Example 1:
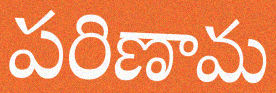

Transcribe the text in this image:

పరిణామ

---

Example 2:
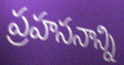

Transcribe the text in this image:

ప్రహసనాన్ని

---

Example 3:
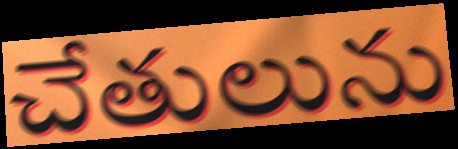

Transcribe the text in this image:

చేతులును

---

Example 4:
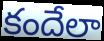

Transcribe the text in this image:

కందేలా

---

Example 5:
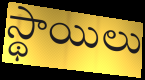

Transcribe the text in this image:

స్థాయిలు